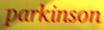
parkinson